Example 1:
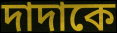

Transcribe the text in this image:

দাদাকে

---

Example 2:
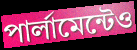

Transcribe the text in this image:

পার্লামেন্টেও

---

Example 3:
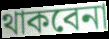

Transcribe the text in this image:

থাকবেনা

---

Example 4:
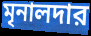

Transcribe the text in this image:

মৃনালদার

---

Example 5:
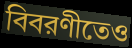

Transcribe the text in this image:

বিবরণীতেও